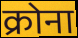
क्रोना